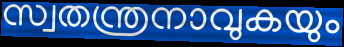
സ്വതന്ത്രനാവുകയും